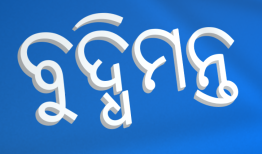
ବୁଦ୍ଧିମନ୍ତ